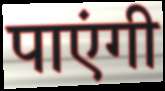
पाएंगी